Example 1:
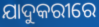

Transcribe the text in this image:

ଯାଦୁକରୀରେ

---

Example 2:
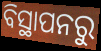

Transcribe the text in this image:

ବିସ୍ଥାପନରୁ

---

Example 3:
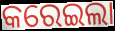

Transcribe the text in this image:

କରେଇଲା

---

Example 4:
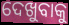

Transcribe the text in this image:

ଦେଖୁବାକୁ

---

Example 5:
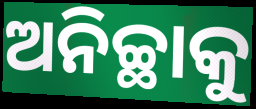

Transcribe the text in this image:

ଅନିଚ୍ଛାକୁ